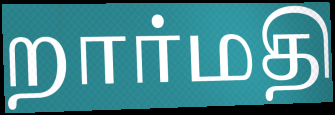
றார்மதி